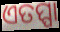
ଏତପ୍ପା